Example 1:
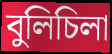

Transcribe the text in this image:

বুলিচিলা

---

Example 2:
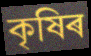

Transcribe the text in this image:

কৃষিৰ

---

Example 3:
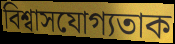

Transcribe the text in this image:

বিশ্বাসযোগ্যতাক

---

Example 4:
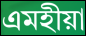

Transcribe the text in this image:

এমহীয়া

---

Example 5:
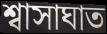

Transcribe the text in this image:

শ্বাসাঘাত